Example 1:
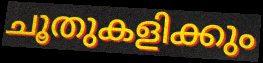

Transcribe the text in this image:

ചൂതുകളിക്കും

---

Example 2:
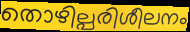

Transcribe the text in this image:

തൊഴില്പരിശീലനം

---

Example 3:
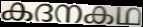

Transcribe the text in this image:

കദനകഥ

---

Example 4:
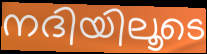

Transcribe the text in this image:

നദിയിലൂടെ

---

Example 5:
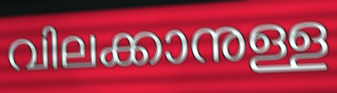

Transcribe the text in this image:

വിലക്കാനുള്ള